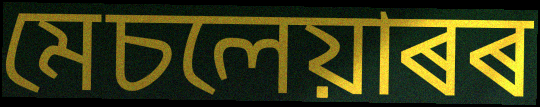
মেচলেয়াৰৰ